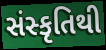
સંસ્કૃતિથી